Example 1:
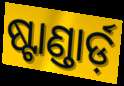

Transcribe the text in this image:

ଷ୍ଟାଣ୍ଡାର୍ଡ଼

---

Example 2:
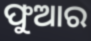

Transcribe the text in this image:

ଫୁଆର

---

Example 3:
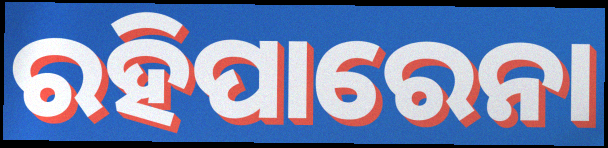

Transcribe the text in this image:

ରହିପାରେନା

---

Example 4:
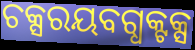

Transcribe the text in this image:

ଚକ୍ସରୟବଗ୍ଧକ୍ଟକ୍ସ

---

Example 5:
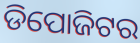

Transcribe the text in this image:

ଡିପୋଜିଟର